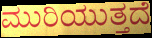
ಮುರಿಯುತ್ತದೆ